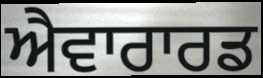
ਐਵਾਰਾਰਡ